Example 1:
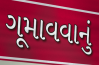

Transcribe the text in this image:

ગૂમાવવાનું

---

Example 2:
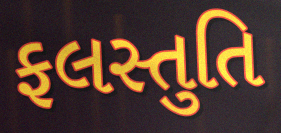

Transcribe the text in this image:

ફલસ્તુતિ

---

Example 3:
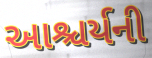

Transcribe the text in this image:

આશ્ચર્યની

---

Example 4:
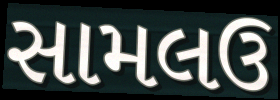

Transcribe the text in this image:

સામલઉ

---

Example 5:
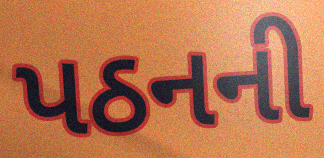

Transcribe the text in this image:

પઠનની